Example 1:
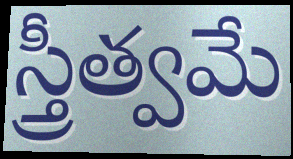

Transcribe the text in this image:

స్త్రీత్వమే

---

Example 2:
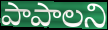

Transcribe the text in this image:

పాపాలని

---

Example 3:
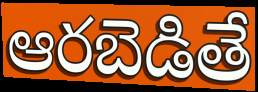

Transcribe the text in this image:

ఆరబెడితే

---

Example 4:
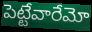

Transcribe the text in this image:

పెట్టేవారేమో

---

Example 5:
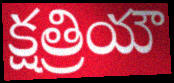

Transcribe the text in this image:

క్షత్రియౌ